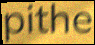
pithe